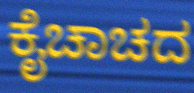
ಕೈಚಾಚದ